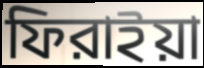
ফিরাইয়া